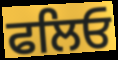
ਫਲਿਓ